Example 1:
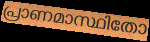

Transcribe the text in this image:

പ്രാണമാസ്ഥിതോ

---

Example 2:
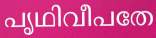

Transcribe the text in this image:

പൃഥിവീപതേ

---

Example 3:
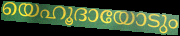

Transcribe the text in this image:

യെഹൂദായോടും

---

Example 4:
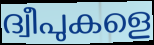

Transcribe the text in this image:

ദ്വീപുകളെ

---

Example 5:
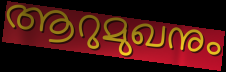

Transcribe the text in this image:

ആറുമുഖനും